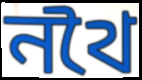
নথৈ